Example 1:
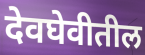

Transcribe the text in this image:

देवघेवीतील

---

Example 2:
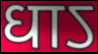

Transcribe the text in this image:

धाऽ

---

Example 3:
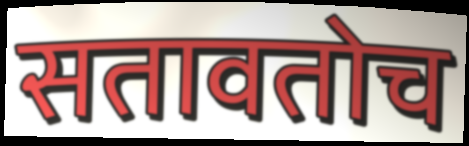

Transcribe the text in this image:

सतावतोच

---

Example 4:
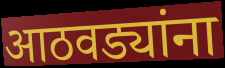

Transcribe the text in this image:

आठवड्यांना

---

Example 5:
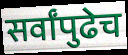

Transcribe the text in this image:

सर्वांपुढेच